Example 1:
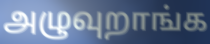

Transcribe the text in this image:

அழுவுறாங்க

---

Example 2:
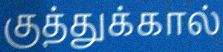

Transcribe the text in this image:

குத்துக்கால்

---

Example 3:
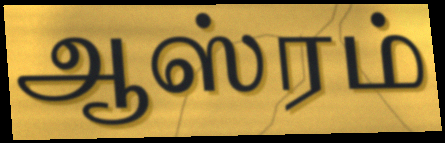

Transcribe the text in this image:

ஆஸ்ரம்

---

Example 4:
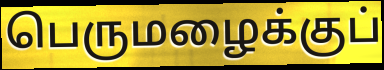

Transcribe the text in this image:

பெருமழைக்குப்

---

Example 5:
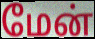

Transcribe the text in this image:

மேன்